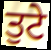
ਤੁਟੇ